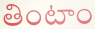
తింటాం